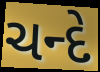
ચન્દે